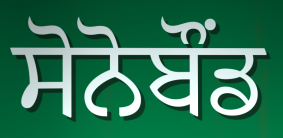
ਸੋਨੋਬੌਂਡ